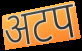
अटप